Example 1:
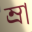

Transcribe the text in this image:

ম্রা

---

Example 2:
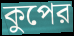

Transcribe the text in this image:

কুপের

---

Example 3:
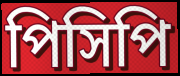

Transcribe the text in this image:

পিসিপি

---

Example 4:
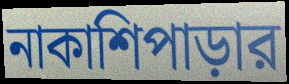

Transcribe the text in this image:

নাকাশিপাড়ার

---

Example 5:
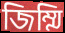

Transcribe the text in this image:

জিম্মি